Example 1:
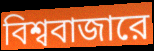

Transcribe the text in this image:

বিশ্ববাজারে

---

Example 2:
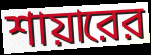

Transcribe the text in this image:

শায়ারের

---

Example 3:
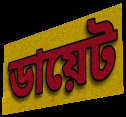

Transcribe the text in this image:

ডায়েট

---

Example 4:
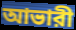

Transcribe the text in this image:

আভারী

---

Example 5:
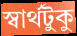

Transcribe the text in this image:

স্বার্থটুকু